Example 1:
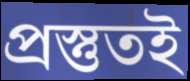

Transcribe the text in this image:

প্রস্তুতই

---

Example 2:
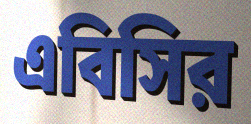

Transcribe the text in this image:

এবিসির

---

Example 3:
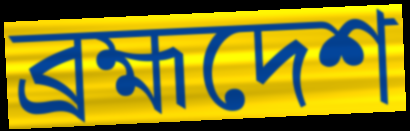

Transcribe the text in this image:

ব্রহ্মদেশ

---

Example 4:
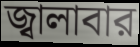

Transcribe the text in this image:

জ্বালাবার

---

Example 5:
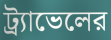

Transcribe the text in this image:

ট্র্যাভেলের